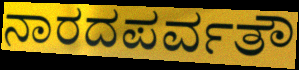
ನಾರದಪರ್ವತೌ